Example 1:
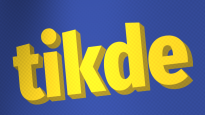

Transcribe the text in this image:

tikde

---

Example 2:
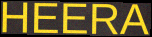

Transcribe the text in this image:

HEERA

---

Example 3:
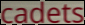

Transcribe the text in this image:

cadets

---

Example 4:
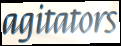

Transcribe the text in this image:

agitators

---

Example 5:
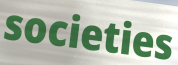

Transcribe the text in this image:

societies